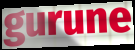
gurune